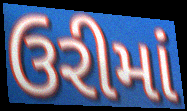
ઉરીમાં